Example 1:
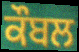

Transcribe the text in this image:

ਕੌਬਲ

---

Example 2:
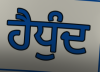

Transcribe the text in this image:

ਹੈਧੁੰਦ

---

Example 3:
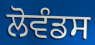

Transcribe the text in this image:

ਲੋਵੰਡਸ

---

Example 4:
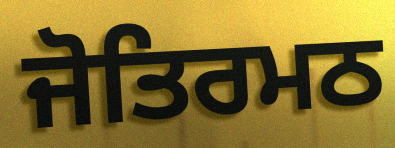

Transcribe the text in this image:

ਜੋਤਿਰਮਠ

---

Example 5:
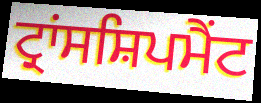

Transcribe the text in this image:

ਟ੍ਰਾਂਸਸ਼ਿਪਮੈਂਟ